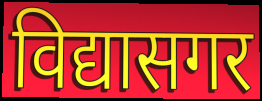
विद्यासगर